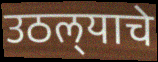
उठल्याचे